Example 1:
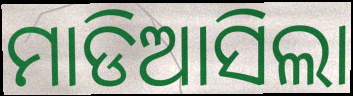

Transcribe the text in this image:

ମାଡିଆସିଲା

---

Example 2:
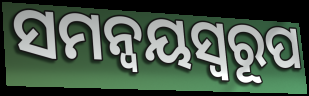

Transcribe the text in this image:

ସମନ୍ୱୟସ୍ୱରୂପ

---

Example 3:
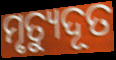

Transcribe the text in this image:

ମୃତ୍ୟୁଦୂତ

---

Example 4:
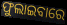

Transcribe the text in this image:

ଫୁଲାଇବାରେ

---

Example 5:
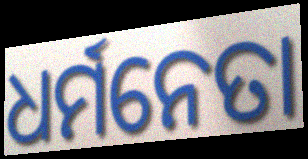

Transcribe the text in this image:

ଧର୍ମନେତା